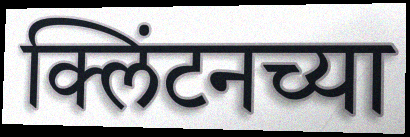
क्लिंटनच्या